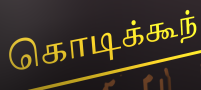
கொடிக்கூந்